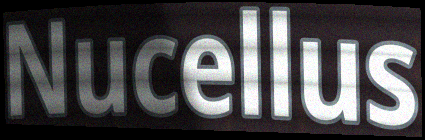
Nucellus